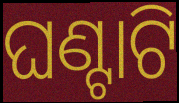
ଘଣ୍ଟାଟି